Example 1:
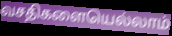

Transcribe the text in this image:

வசதிகளையெல்லாம்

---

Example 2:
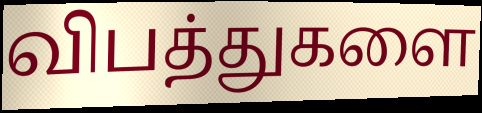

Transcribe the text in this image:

விபத்துகளை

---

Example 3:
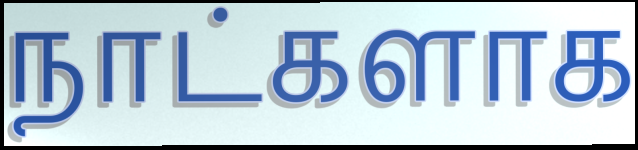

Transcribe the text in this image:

நாட்களாக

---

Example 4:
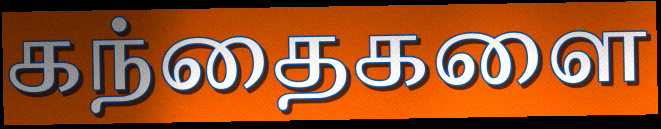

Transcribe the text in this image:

கந்தைகளை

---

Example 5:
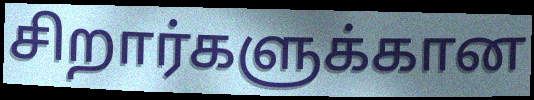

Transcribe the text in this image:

சிறார்களுக்கான